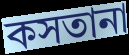
কসতানা